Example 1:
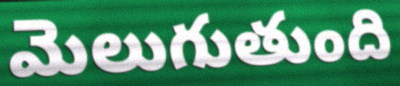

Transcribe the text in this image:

మెలుగుతుంది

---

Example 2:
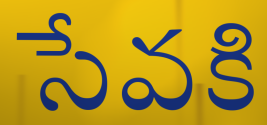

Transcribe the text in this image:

సేవకి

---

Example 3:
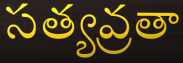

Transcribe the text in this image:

సత్యవ్రతా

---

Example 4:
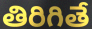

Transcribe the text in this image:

తిరిగితే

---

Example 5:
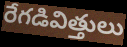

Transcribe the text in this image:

రేగడివిత్తులు